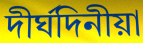
দীৰ্ঘদিনীয়া